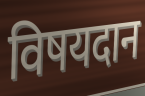
विषयदान